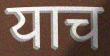
याच